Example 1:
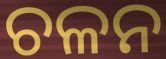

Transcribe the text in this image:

ଚଳନ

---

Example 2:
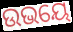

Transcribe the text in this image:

ଉଭୟେ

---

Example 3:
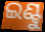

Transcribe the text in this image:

ଇଣ୍ଟୁ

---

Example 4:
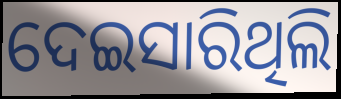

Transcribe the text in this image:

ଦେଇସାରିଥିଲି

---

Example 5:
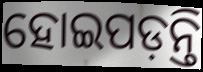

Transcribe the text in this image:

ହୋଇପଡ଼ନ୍ତି